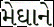
મેઘાને